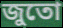
জুতো